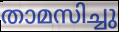
താമസിച്ചു